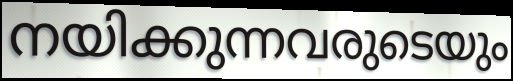
നയിക്കുന്നവരുടെയും